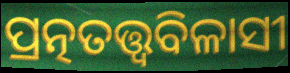
ପ୍ରତ୍ନତତ୍ତ୍ବବିଳାସୀ